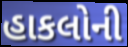
હાકલોની